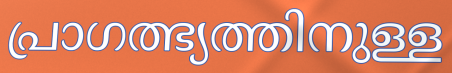
പ്രാഗത്ഭ്യത്തിനുള്ള